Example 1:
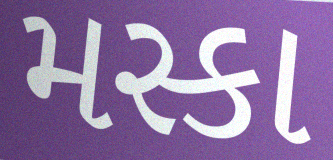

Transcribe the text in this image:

મસ્કા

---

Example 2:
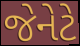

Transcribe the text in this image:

જેનેટે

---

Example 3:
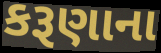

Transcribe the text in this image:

કરૂણાના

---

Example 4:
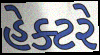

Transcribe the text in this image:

હેક્ટરે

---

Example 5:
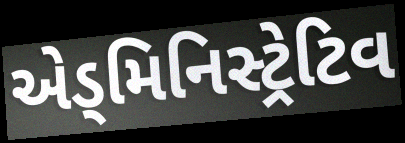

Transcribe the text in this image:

એડ્મિનિસ્ટ્રેટિવ